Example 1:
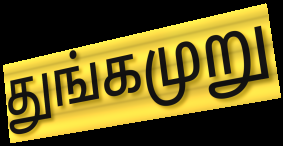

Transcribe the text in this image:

துங்கமுறு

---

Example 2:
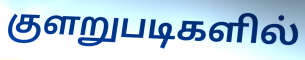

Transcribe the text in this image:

குளறுபடிகளில்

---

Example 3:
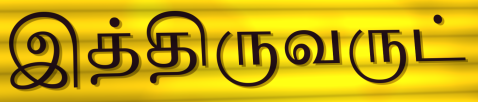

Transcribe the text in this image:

இத்திருவருட்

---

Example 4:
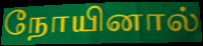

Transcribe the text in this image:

நோயினால்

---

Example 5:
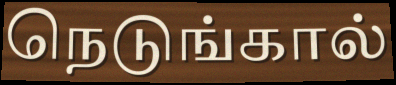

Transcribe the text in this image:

நெடுங்கால்